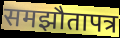
समझौतापत्र